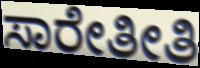
ಸಾರೇತೀತಿ